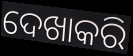
ଦେଖାକରି